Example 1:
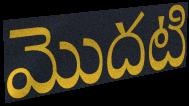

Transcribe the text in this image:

మొదటి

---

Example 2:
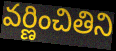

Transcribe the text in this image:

వర్ణించితిని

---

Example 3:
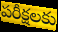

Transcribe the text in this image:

పరీక్షలకు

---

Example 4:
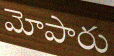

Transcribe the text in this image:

మోపారు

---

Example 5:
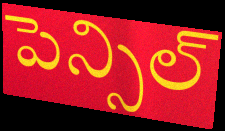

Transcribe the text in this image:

పెన్సిల్